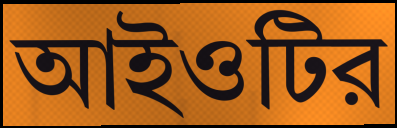
আইওটির